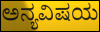
ಅನ್ಯವಿಷಯ